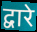
द्वारे